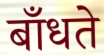
बाँधते